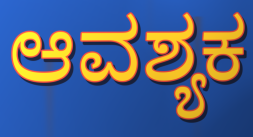
ಆವಶ್ಯಕ